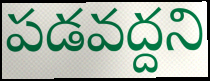
పడవద్దని